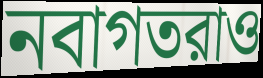
নবাগতরাও